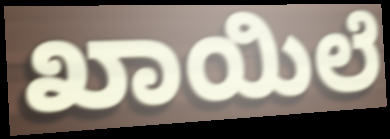
ಖಾಯಿಲೆ